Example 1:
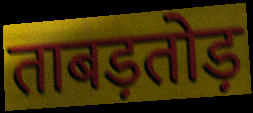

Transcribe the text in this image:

ताबड़तोड़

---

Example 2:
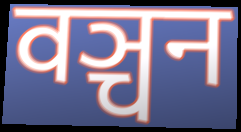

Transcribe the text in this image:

वञ्चन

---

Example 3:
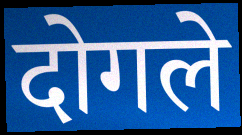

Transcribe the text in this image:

दोगले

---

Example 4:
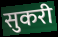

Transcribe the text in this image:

सुकरी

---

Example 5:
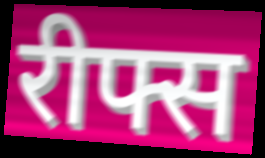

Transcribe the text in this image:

रीफ्स